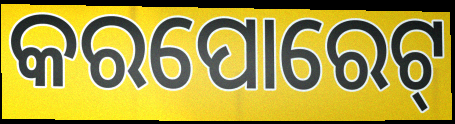
କରପୋରେଟ୍